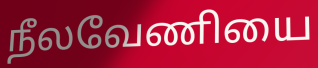
நீலவேணியை